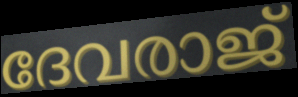
ദേവരാജ്